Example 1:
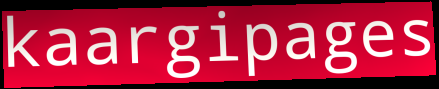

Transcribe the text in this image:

kaargipages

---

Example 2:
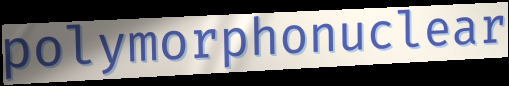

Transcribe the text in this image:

polymorphonuclear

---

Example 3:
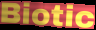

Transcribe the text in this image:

Biotic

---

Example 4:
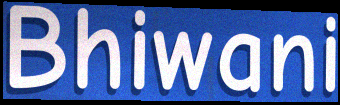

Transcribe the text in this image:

Bhiwani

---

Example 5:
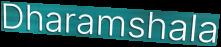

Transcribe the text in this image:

Dharamshala